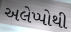
અલેપ્પોથી